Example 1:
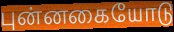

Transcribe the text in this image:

புன்னகையோடு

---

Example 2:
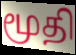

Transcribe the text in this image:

மூதி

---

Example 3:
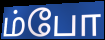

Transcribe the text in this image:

ம்போ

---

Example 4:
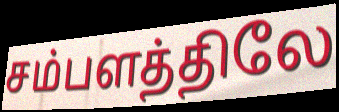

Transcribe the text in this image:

சம்பளத்திலே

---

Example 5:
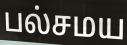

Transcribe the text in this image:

பல்சமய